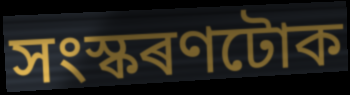
সংস্কৰণটোক